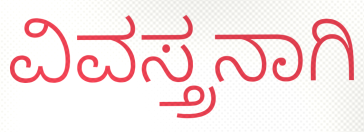
ವಿವಸ್ತ್ರನಾಗಿ